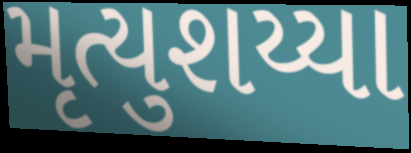
મૃત્યુશય્યા